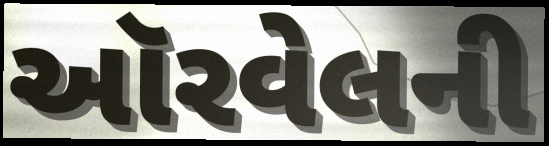
ઑરવેલની